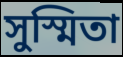
সুস্মিতা